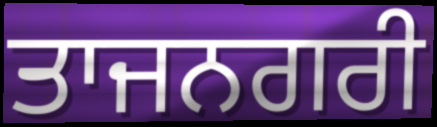
ਤਾਜਨਗਰੀ